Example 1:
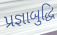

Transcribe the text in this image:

પ્રજ્ઞાબુદ્ધિ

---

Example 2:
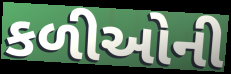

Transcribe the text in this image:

કળીઓની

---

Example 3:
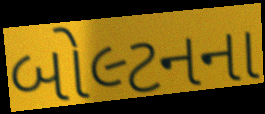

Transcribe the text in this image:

બોલ્ટનના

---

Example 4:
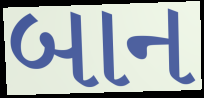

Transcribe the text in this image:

બાન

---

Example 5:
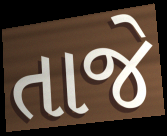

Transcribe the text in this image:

તાજે